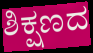
ಶಿಕ್ಷಣದ